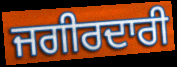
ਜਗੀਰਦਾਰੀ